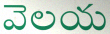
వెలయ